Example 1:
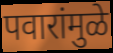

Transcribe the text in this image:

पवारांमुळे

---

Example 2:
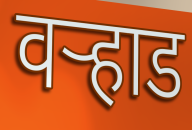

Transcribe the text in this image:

वर्‍हाड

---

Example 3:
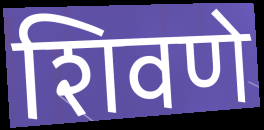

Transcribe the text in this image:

शिवणे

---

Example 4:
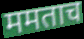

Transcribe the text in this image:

ममताच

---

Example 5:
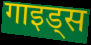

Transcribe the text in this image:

गाइड्स